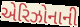
એરિઝોનાની